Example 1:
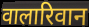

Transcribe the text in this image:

वालारिवान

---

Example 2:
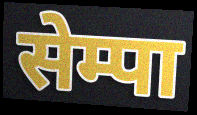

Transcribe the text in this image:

सेम्पा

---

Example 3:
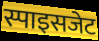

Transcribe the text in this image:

स्‍पाइसजेट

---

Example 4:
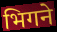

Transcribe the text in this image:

भिगने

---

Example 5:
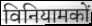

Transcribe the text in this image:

विनियामकों